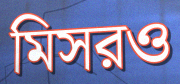
মিসরও